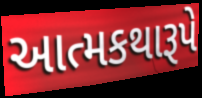
આત્મકથારૂપે